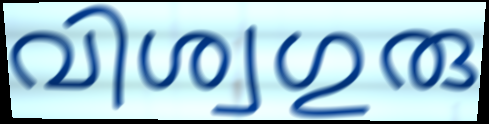
വിശ്വഗുരു